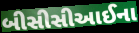
બીસીસીઆઈના